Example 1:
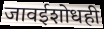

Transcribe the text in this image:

जावईशोधही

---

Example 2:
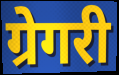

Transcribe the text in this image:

ग्रेगरी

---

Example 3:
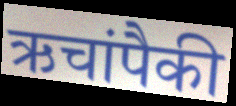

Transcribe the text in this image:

ऋचांपैकी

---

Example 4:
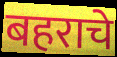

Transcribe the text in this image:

बहराचे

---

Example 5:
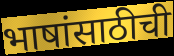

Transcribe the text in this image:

भाषांसाठीची